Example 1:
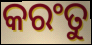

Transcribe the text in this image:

କରଂତୁ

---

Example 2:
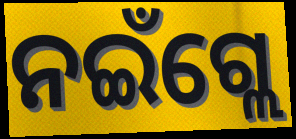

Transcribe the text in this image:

ନଇଁଗ୍ଲେ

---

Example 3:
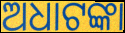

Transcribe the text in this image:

ଅଧାଟଙ୍କା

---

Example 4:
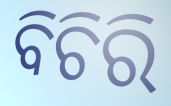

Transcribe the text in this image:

ବିଚିରି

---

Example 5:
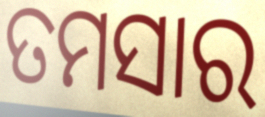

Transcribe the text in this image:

ତମସାର